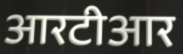
आरटीआर